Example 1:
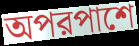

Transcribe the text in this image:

অপরপাশে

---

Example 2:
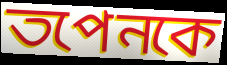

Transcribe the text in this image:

তপেনকে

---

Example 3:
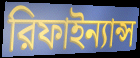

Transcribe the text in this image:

রিফাইন্যান্স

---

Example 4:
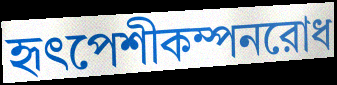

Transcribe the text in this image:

হৃৎপেশীকম্পনরোধ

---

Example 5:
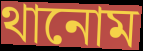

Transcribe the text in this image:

থানোম